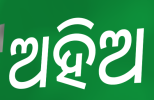
ଅହିଅ